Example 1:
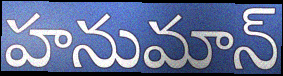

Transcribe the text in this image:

హనుమాన్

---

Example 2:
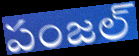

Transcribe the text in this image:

పంజల్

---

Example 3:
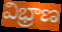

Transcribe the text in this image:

విభ్రాణ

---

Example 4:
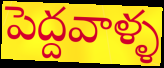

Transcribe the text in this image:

పెద్దవాళ్ళ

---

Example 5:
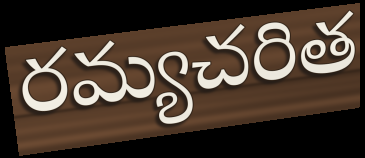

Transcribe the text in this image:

రమ్యచరిత